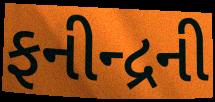
ફનીન્દ્રની